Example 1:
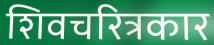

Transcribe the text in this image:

शिवचरित्रकार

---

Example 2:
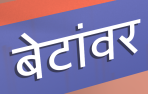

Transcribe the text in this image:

बेटांवर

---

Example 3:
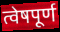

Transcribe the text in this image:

त्वेषपूर्ण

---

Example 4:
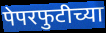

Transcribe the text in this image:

पेपरफुटीच्या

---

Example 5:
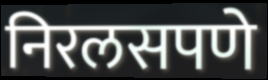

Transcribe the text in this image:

निरलसपणे